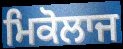
ਮਿਕੋਲਾਜ